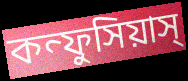
কন্ফুসিয়াস্